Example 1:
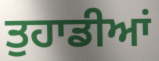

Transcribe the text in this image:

ਤੁਹਾਡੀਆਂ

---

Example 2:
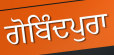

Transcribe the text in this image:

ਗੋਬਿੰਦਪੁਰਾ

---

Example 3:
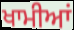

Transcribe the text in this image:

ਖਾਮੀਆਂ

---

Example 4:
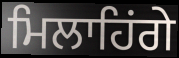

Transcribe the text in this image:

ਮਿਲਾਹਿਂਗੇ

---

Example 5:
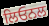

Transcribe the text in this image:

ਲਿਓਨਲ